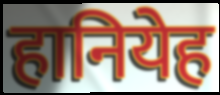
हानियेह